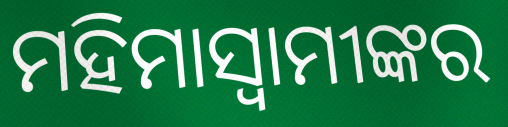
ମହିମାସ୍ୱାମୀଙ୍କର